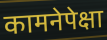
कामनेपेक्षा